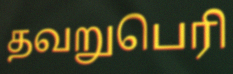
தவறுபெரி